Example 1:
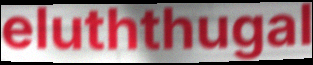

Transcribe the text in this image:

eluththugal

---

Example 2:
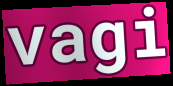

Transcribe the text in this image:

vagi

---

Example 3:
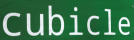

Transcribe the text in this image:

cubicle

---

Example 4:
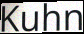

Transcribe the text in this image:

Kuhn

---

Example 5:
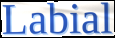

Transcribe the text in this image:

Labial